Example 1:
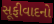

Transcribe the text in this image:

સૂફીવાદનો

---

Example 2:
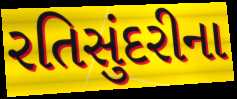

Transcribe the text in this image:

રતિસુંદરીના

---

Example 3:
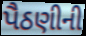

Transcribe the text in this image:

પૈઠણીની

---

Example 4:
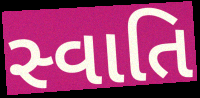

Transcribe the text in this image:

સ્વાતિ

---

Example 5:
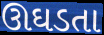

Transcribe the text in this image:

ઊઘડતા